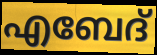
എബേദ്